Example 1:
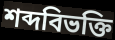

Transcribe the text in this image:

শব্দবিভক্তি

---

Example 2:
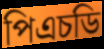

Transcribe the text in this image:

পিএচডি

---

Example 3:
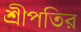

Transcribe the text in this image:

শ্রীপতির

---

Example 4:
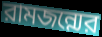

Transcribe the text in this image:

রামজন্মের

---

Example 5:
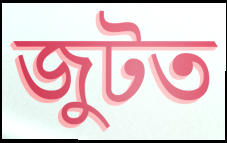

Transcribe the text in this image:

জুটত